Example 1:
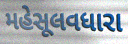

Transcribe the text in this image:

મહેસૂલવધારા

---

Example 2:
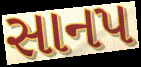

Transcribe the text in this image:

સાનપ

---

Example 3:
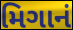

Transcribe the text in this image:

મિગાનં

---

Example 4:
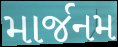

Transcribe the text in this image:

માર્જનમ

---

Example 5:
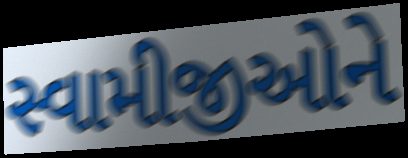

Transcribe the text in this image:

સ્વામીજીઓને